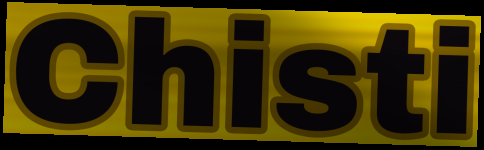
Chisti